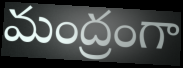
మంద్రంగా